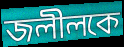
জলীলকে